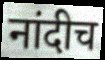
नांदीच